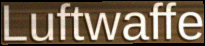
Luftwaffe